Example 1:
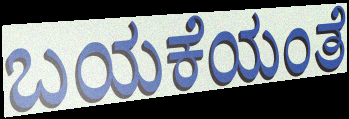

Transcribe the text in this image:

ಬಯಕೆಯಂತೆ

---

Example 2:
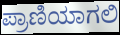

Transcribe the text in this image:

ಪ್ರಾಣಿಯಾಗಲಿ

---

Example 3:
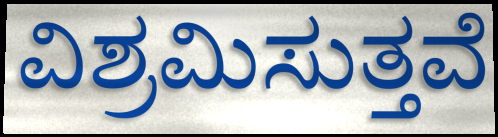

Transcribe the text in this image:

ವಿಶ್ರಮಿಸುತ್ತವೆ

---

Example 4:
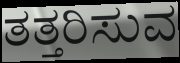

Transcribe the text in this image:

ತತ್ತರಿಸುವ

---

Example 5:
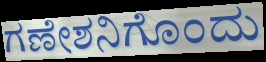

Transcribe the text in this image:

ಗಣೇಶನಿಗೊಂದು